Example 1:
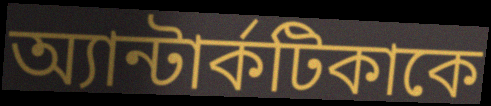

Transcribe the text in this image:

অ্যান্টার্কটিকাকে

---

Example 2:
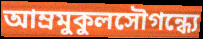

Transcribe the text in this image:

আম্রমুকুলসৌগন্ধ্যে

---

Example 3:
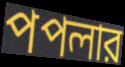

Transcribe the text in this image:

পপলার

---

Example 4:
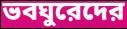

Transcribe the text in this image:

ভবঘুরেদের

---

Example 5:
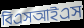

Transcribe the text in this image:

বিএসআইএস